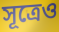
সূত্রেও